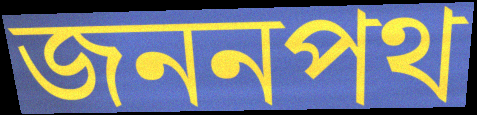
জননপথ